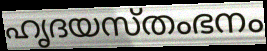
ഹൃദയസ്തംഭനം